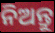
ନିଅନ୍ତୁ